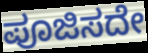
ಪೂಜಿಸದೇ